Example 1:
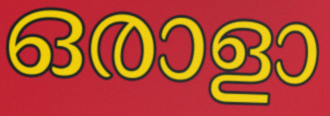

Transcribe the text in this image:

ഒരാളാ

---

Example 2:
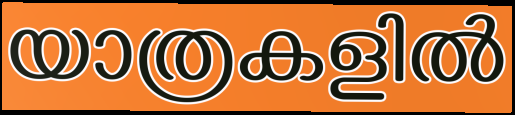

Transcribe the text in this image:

യാത്രകളിൽ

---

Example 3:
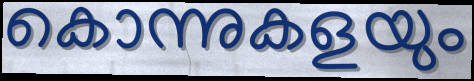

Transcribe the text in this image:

കൊന്നുകളയും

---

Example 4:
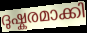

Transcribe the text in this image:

ദുഷ്കരമാക്കി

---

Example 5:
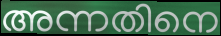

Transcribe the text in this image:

അന്നതിനെ